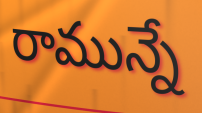
రామున్నే